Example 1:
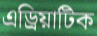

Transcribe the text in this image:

এড্ৰিয়াটিক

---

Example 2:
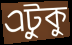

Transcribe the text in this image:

এটুকু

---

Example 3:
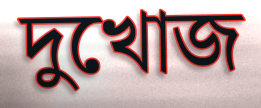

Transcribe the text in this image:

দুখোজ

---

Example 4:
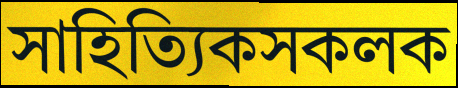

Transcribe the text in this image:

সাহিত্যিকসকলক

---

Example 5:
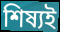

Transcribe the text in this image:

শিষ্যই